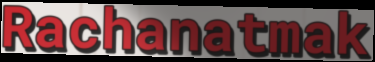
Rachanatmak